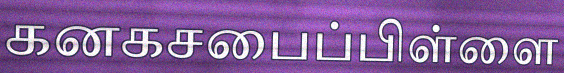
கனகசபைப்பிள்ளை